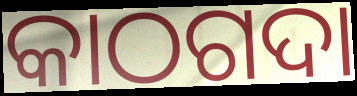
କାଠଗଦା